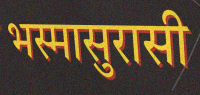
भस्मासुरासी